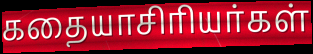
கதையாசிரியர்கள்